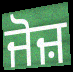
ਜੋਜ਼